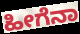
ಹೀಗೆನಾ